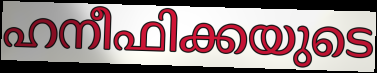
ഹനീഫിക്കയുടെ